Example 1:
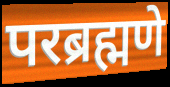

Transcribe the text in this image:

परब्रह्मणे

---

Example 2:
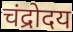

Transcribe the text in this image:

चंद्रोदय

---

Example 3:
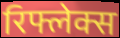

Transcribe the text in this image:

रिफ्लेक्स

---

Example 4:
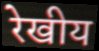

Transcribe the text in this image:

रेखीय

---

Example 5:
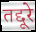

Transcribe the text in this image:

तद्दूरे